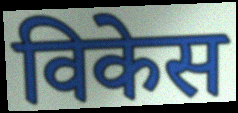
विकेस